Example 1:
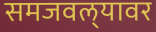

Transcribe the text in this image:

समजवल्यावर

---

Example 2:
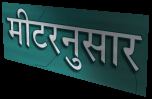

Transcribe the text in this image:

मीटरनुसार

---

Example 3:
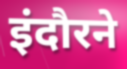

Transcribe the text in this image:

इंदौरने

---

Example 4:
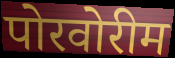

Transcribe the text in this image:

पोरवोरीम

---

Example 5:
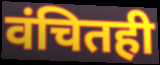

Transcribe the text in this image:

वंचितही